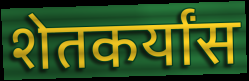
शेतकर्यांस